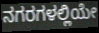
ನಗರಗಳಲ್ಲಿಯೇ